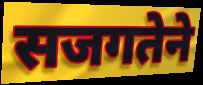
सजगतेने